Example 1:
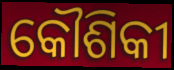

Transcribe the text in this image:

କୌଶିକୀ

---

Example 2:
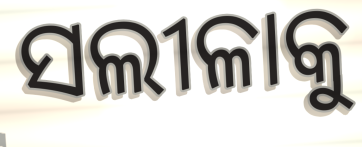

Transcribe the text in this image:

ସଲୀଳାକୁ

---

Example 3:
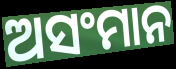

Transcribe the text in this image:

ଅସଂମାନ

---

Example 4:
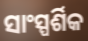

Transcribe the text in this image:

ସାଂସ୍ପର୍ଶିକ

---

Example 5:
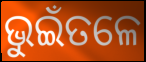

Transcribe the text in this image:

ଭୁଇଁତଳେ